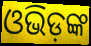
ଓଭିଡ଼ଙ୍କ